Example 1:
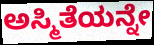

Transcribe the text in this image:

ಅಸ್ಮಿತೆಯನ್ನೇ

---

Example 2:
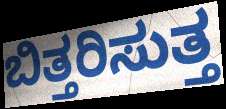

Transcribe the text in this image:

ಬಿತ್ತರಿಸುತ್ತ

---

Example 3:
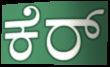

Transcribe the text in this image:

ಕೆರ್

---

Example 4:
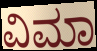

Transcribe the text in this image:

ವಿಮಾ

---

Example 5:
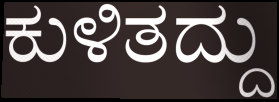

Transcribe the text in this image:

ಕುಳಿತದ್ದು